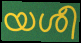
യശീ